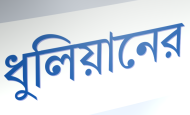
ধুলিয়ানের